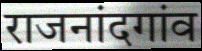
राजनांदगांव